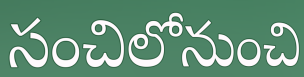
సంచిలోనుంచి